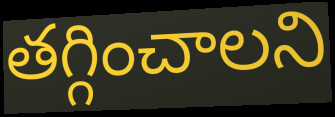
తగ్గించాలని